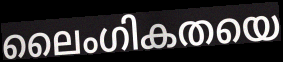
ലൈംഗികതയെ